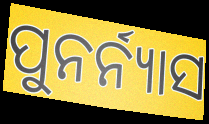
ପୁନର୍ନ୍ୟାସ